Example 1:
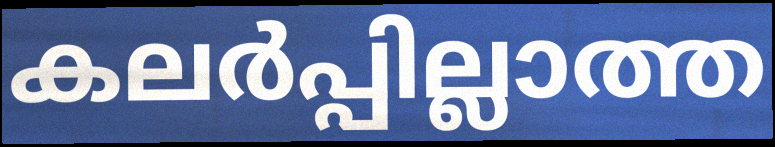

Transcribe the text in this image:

കലർപ്പില്ലാത്ത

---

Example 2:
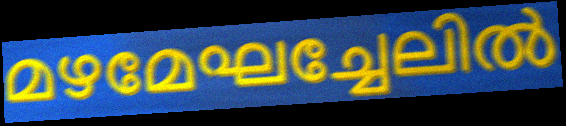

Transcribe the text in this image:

മഴമേഘച്ചേലിൽ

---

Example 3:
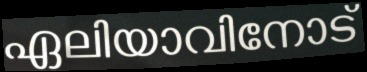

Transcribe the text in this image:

ഏലിയാവിനോട്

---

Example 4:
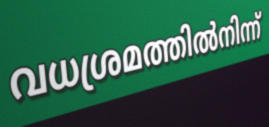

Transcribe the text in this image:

വധശ്രമത്തിൽനിന്ന്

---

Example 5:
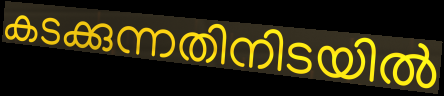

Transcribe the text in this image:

കടക്കുന്നതിനിടയിൽ